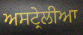
ਅਸਟ੍ਰੇਲੀਆ